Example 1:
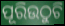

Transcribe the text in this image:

ପୂରିଉଠୁଚି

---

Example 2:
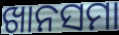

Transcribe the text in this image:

ଖାନସମା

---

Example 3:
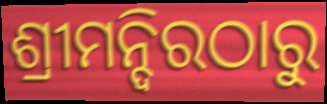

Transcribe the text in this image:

ଶ୍ରୀମନ୍ଦିରଠାରୁ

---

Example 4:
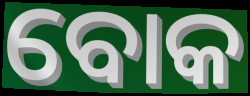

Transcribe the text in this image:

ବୋକ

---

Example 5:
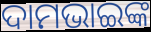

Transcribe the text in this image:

ଦାମଭାଇଙ୍କ